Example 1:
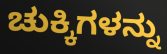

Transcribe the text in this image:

ಚುಕ್ಕಿಗಳನ್ನು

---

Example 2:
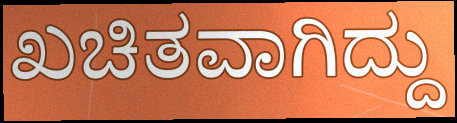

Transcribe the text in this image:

ಖಚಿತವಾಗಿದ್ದು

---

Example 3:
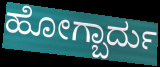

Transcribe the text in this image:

ಹೋಗ್ಬಾರ್ದು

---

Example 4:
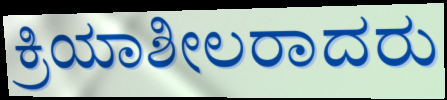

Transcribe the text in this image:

ಕ್ರಿಯಾಶೀಲರಾದರು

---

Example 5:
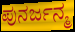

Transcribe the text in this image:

ಪುನರ್ಜನ್ಮ